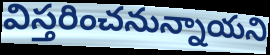
విస్తరించనున్నాయని